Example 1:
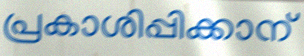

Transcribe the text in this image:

പ്രകാശിപ്പിക്കാന്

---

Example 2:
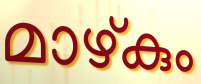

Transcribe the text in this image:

മാഴ്കും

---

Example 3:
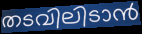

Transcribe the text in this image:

തടവിലിടാൻ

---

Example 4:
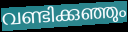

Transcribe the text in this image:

വണ്ടിക്കുഞ്ഞും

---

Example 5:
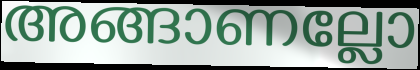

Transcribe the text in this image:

അങ്ങാണല്ലോ